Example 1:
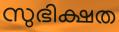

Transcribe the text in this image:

സുഭിക്ഷത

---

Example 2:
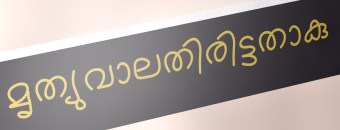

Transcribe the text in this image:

മൃത്യുവാലതിരിട്ടതാകു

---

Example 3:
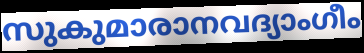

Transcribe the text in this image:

സുകുമാരാനവദ്യാംഗീം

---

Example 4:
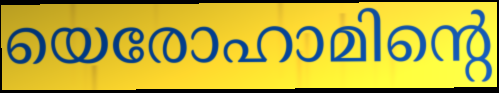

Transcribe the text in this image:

യെരോഹാമിന്റെ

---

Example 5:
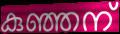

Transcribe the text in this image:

കുഞ്ഞന്